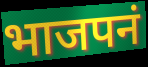
भाजपनं